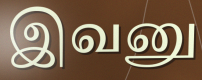
இவனு